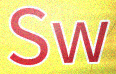
Sw